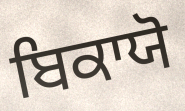
ਬਿਕਾਯੋ